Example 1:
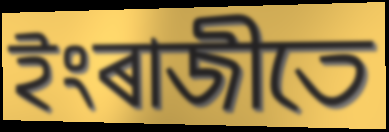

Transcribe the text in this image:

ইংৰাজীতে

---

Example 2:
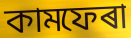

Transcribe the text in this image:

কামফেৰা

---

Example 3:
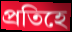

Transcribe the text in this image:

প্ৰতিহে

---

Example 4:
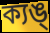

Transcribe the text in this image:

ক্যঙ্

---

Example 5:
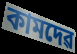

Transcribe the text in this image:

কামদেৱ